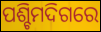
ପଶ୍ଚିମଦିଗରେ